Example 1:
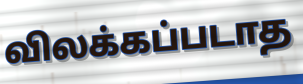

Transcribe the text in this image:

விலக்கப்படாத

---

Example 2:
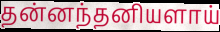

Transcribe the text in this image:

தன்னந்தனியளாய்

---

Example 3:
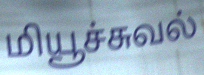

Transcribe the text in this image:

மியூச்சுவல்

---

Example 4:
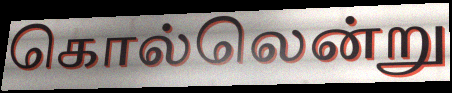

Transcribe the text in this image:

கொல்லென்று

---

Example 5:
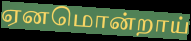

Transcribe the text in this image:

ஏனமொன்றாய்